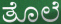
ತೊಲೆ